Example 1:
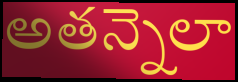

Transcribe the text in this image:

అతన్నెలా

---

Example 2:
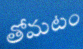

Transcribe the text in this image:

తోమటం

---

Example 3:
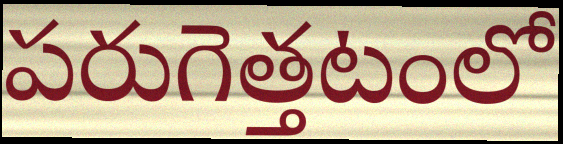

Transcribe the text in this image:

పరుగెత్తటంలో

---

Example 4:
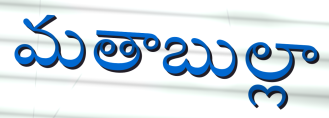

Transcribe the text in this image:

మతాబుల్లా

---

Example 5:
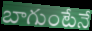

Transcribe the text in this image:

బాగుంటేనే